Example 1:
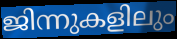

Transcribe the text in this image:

ജിന്നുകളിലും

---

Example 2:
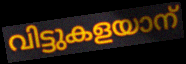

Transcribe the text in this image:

വിട്ടുകളയാന്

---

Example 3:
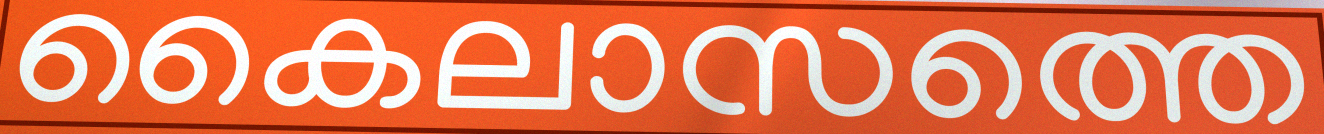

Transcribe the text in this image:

കൈലാസത്തെ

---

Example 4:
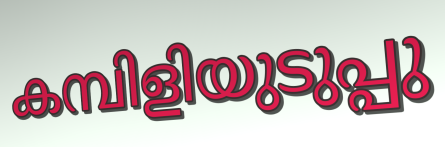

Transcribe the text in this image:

കമ്പിളിയുടുപ്പു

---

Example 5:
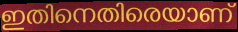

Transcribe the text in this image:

ഇതിനെതിരെയാണ്